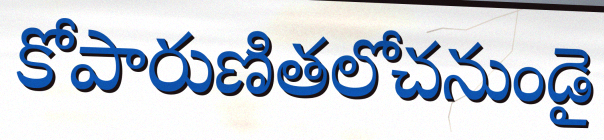
కోపారుణితలోచనుండై